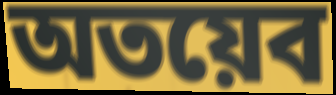
অতয়েব